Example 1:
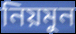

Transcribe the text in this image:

নিয়মুন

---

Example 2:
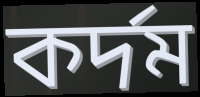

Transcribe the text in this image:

কর্দম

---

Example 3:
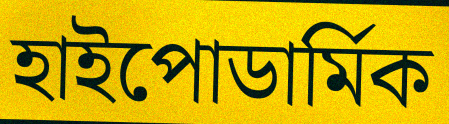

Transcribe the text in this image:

হাইপোডার্মিক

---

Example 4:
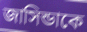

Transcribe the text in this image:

জাসিন্ডাকে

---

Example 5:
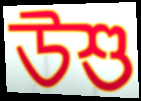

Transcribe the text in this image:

উশু